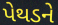
પેથડને